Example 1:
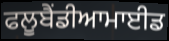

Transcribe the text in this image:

ਫਲੂਬੈਂਡੀਆਮਾਈਡ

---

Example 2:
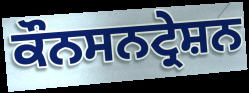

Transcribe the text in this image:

ਕੌਨਸਨਟ੍ਰੇਸ਼ਨ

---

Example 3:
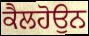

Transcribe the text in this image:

ਕੈਲਹੋਉਨ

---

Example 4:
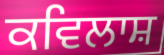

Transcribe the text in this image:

ਕਵਿਲਾਸ਼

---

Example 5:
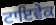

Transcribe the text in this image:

ਟਾਇਵੇਕ